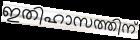
ഇതിഹാസത്തിന്